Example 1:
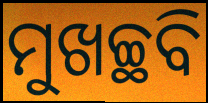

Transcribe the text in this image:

ମୁଖଚ୍ଛବି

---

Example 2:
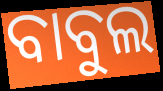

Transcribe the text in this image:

ବାବୁଲ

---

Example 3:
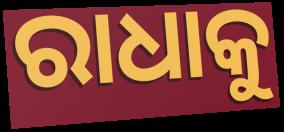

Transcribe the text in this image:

ରାଧାକୁ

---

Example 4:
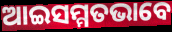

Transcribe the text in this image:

ଆଇସମ୍ମତଭାବେ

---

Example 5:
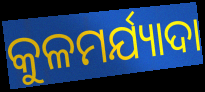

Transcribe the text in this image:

କୁଳମର୍ଯ୍ୟାଦା